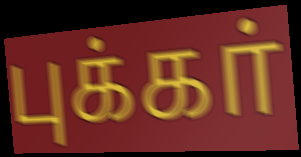
புக்கர்